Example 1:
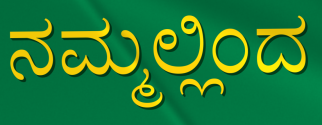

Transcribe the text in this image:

ನಮ್ಮಲ್ಲಿಂದ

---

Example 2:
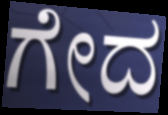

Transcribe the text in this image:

ಗೇದ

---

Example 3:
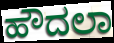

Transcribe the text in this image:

ಹೌದಲಾ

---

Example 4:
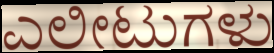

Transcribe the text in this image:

ಎಲೀಟುಗಳು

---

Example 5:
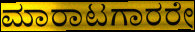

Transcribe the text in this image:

ಮಾರಾಟಗಾರರೇ